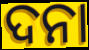
ଦନା